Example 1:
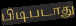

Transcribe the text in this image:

பிடிபடாது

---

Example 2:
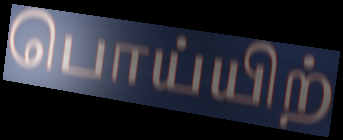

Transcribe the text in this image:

பொய்யிற்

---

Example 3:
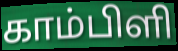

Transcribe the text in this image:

காம்பிளி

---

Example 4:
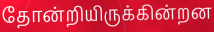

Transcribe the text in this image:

தோன்றியிருக்கின்றன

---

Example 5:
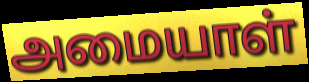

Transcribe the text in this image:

அமையாள்